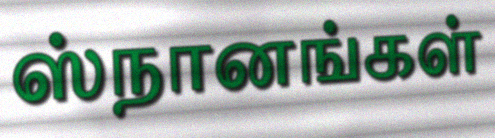
ஸ்நானங்கள்